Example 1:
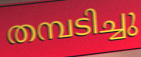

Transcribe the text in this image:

തമ്പടിച്ചു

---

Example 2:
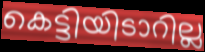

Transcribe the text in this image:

കെട്ടിയിടാറില്ല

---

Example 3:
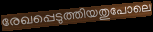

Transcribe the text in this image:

രേഖപ്പെടുത്തിയതുപോലെ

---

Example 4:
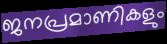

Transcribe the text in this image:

ജനപ്രമാണികളും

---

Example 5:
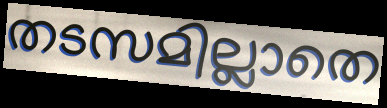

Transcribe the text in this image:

തടസമില്ലാതെ